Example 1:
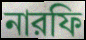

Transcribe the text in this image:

নারফি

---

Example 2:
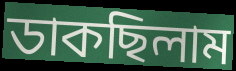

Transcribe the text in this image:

ডাকছিলাম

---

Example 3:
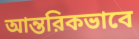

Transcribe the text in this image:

আন্তরিকভাবে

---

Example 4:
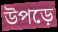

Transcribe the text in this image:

উপড়ে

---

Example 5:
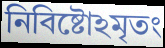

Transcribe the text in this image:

নিবিষ্টোঽমৃতং